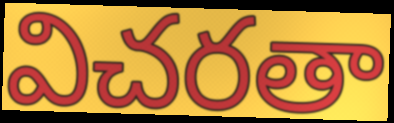
విచరతా